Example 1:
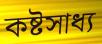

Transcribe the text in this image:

কষ্টসাধ্য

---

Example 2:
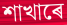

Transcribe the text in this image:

শাখাৰে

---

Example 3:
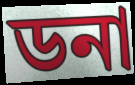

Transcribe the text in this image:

ডনা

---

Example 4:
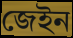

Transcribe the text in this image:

জেইন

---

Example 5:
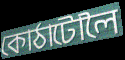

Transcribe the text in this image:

কোঠাটোলৈ